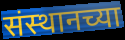
संस्थानच्या